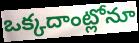
ఒక్కదాంట్లోనూ